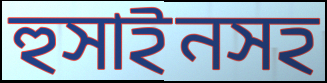
হুসাইনসহ